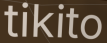
tikito